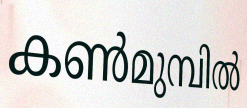
കൺമുമ്പിൽ